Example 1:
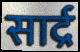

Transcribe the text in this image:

सार्द्र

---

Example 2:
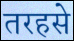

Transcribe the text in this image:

तरहसे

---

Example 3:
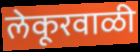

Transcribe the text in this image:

लेकूरवाळी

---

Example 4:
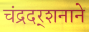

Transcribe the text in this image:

चंद्रदर्शनाने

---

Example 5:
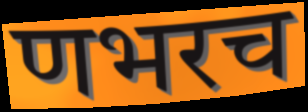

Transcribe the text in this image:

णभरच